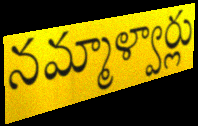
నమ్మాళ్వార్లు